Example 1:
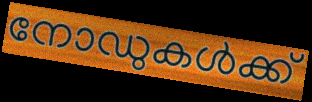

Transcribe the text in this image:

നോഡുകൾക്ക്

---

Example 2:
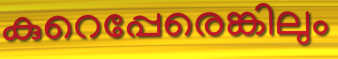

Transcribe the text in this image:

കുറെപ്പേരെങ്കിലും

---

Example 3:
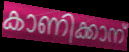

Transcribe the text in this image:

കാണിക്കാന്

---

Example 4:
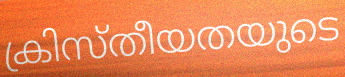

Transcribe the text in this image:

ക്രിസ്തീയതയുടെ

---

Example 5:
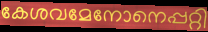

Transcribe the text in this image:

കേശവമേനോനെപ്പറ്റി